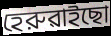
হেৰুৱাইছো